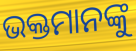
ଭକ୍ତମାନଙ୍କୁ